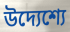
উদ্যেশ্যে